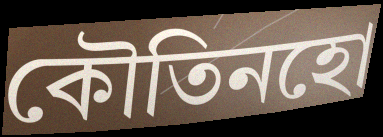
কৌতিনহো